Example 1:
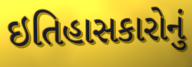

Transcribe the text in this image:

ઇતિહાસકારોનું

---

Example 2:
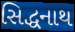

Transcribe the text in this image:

સિદ્ધનાથ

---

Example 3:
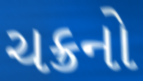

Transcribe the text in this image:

ચક્રનો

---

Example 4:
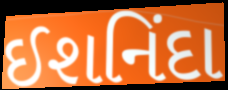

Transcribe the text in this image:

ઈશનિંદા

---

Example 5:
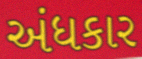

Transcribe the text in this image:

અંધકાર